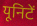
यूनिटें